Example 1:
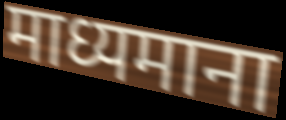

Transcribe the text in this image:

माध्यमाना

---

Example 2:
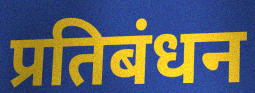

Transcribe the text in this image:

प्रतिबंधन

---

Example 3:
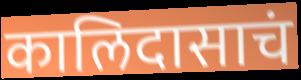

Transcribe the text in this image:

कालिदासाचं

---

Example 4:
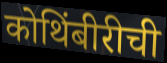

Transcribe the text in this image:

कोथिंबीरीची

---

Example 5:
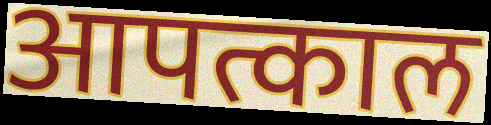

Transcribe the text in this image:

आपत्काल